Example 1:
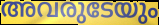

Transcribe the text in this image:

അവരുടേയും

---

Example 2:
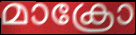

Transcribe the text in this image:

മാക്രോ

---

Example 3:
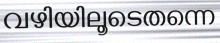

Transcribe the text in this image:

വഴിയിലൂടെതന്നെ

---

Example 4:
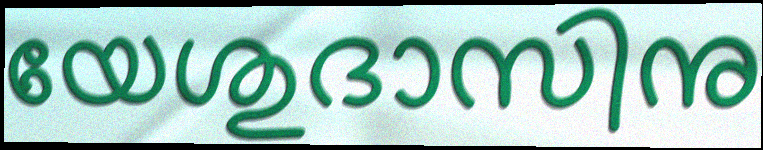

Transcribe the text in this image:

യേശുദാസിനു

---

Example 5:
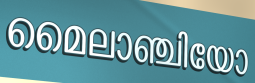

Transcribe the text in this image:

മൈലാഞ്ചിയോ